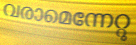
വരാമെന്നേറ്റു